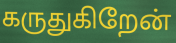
கருதுகிறேன்